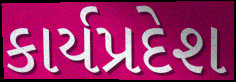
કાર્યપ્રદેશ